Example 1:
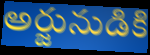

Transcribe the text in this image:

అర్జునుడికి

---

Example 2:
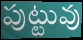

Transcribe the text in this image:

పుట్టువు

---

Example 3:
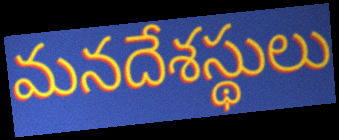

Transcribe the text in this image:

మనదేశస్థులు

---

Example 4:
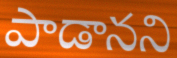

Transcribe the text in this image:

పాడానని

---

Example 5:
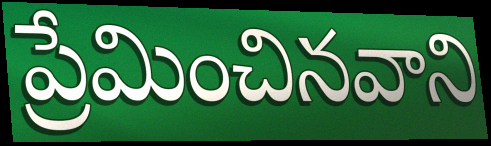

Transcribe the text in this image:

ప్రేమించినవాని